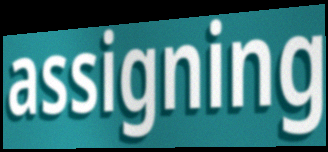
assigning